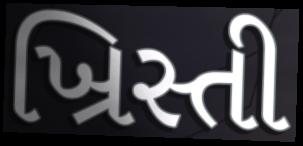
ખ્રિસ્તી